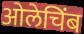
ओलेचिंब